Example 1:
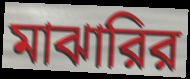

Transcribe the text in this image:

মাঝারির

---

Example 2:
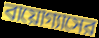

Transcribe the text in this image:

বায়োগ্যাসের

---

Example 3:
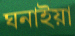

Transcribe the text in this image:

ঘনাইয়া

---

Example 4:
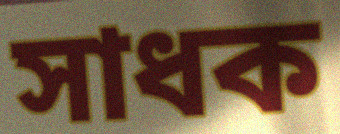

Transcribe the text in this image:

সাধক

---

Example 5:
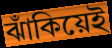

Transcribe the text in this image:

ঝাঁকিয়েই